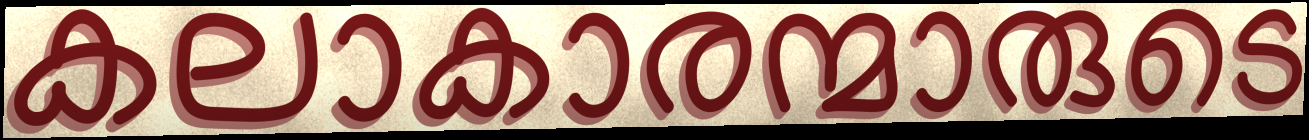
കലാകാരന്മാരുടെ